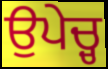
ਉਪੇਚ੍ਚ